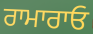
ਰਾਮਾਰਾਓ